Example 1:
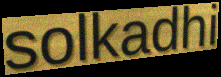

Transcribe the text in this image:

solkadhi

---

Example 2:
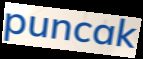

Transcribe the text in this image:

puncak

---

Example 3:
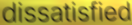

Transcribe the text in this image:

dissatisfied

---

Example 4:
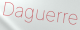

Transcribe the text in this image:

Daguerre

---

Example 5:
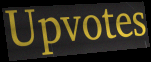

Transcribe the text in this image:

Upvotes